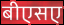
बीएसए